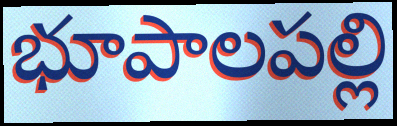
భూపాలపల్లి